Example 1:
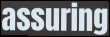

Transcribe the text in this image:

assuring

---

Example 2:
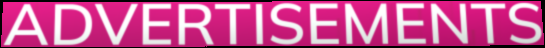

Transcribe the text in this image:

ADVERTISEMENTS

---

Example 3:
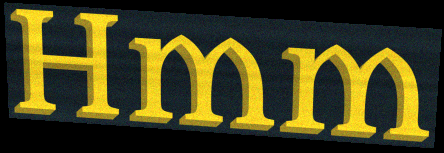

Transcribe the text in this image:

Hmm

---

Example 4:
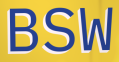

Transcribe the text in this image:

BSW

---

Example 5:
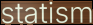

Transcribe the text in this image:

statism